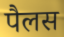
पैलस